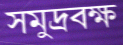
সমুদ্রবক্ষ